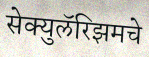
सेक्युलॅरिझमचे